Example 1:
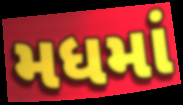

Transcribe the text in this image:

મધમાં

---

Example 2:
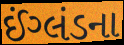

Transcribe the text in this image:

ઈંગ્લંડના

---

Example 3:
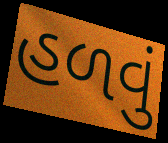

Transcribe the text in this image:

હળવું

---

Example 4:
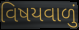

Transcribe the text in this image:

વિષયવાળું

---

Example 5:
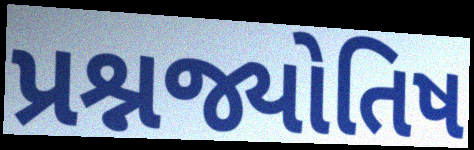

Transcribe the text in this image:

પ્રશ્નજ્યોતિષ